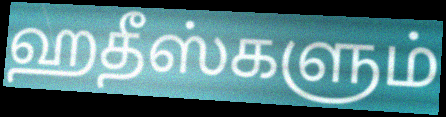
ஹதீஸ்களும்